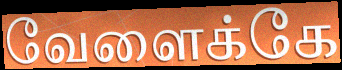
வேளைக்கே